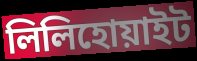
লিলিহোয়াইট